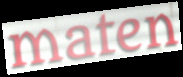
maten